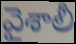
వైశాలీ